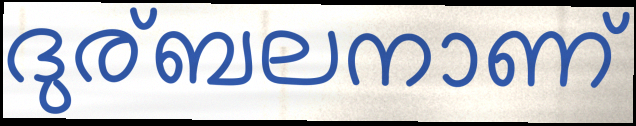
ദുര്ബലനാണ്